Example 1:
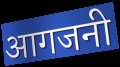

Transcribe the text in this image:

आगजनी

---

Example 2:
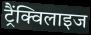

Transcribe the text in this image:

ट्रैंक्विलाइज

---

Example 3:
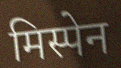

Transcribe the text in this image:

मिस्पेन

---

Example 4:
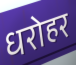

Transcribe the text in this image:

धरोहर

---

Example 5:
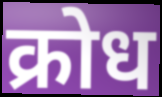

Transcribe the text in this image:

क्रोध